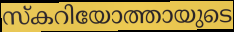
സ്കറിയോത്തായുടെ